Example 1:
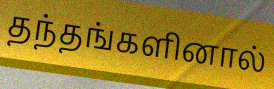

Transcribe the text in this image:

தந்தங்களினால்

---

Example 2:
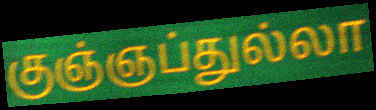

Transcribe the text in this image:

குஞ்ஞப்துல்லா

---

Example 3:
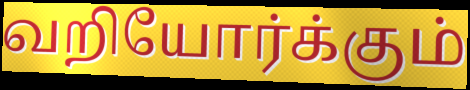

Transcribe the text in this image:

வறியோர்க்கும்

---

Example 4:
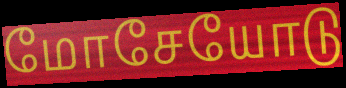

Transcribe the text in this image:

மோசேயோடு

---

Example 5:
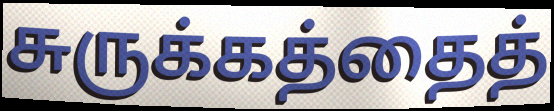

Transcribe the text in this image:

சுருக்கத்தைத்